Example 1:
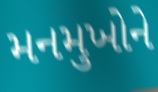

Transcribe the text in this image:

મનમુખોને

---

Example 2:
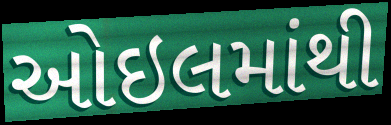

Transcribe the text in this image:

ઓઇલમાંથી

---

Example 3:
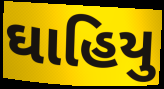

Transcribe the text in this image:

ઘાહિયુ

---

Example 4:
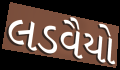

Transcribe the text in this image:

લડવૈયો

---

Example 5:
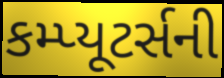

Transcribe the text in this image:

કમ્પ્યૂટર્સની